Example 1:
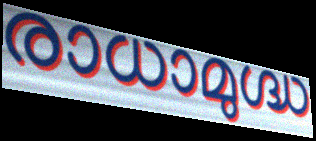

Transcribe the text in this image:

രാധാമുഗ്ദ്ധ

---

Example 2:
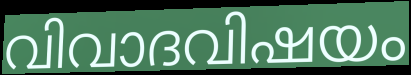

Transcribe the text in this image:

വിവാദവിഷയം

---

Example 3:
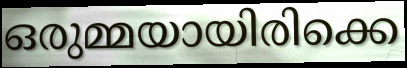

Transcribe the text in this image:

ഒരുമ്മയായിരിക്കെ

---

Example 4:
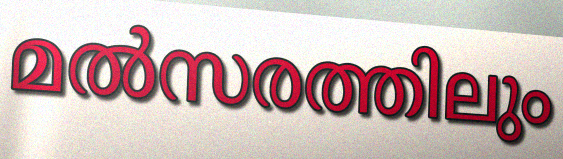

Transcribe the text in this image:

മൽസരത്തിലും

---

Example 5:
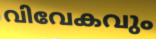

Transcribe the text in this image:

വിവേകവും